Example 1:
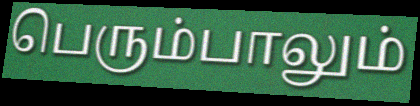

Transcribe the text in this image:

பெரும்பாலும்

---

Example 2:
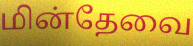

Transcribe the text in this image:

மின்தேவை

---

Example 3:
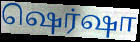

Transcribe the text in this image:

ஷெர்ஷா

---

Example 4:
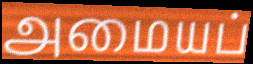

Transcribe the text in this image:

அமையப்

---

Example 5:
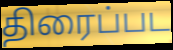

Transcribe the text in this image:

திரைப்பட